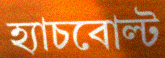
হ্যাচবোল্ট